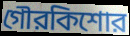
গৌরকিশোর